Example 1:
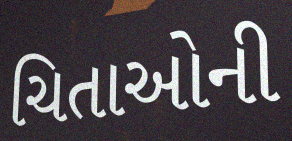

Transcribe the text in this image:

ચિતાઓની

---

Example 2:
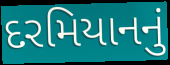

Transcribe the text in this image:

દરમિયાનનું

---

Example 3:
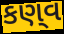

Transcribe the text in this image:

કણ્‌વ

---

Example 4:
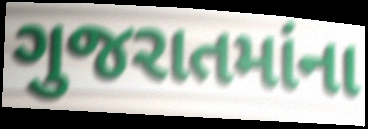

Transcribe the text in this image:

ગુજરાતમાંના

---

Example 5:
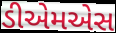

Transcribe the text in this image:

ડીએમએસ